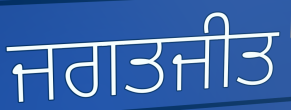
ਜਗਤਜੀਤ